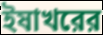
ইষাখরের